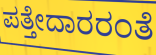
ಪತ್ತೇದಾರರಂತೆ